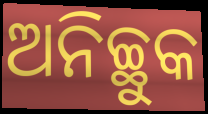
ଅନିଚ୍ଛୁକ